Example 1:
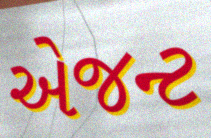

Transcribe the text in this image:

એજન્ટ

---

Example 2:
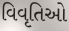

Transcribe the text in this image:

વિવૃતિઓ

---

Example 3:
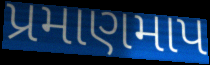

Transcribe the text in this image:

પ્રમાણમાપ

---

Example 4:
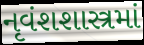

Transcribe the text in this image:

નૃવંશશાસ્ત્રમાં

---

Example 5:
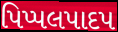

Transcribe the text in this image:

પિપ્પલપાદપ